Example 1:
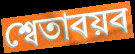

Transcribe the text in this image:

শ্বেতাবয়ব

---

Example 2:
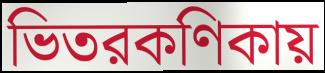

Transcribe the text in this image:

ভিতরকণিকায়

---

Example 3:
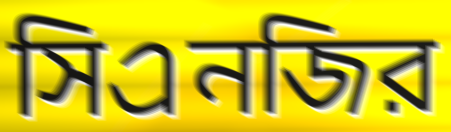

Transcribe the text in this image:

সিএনজির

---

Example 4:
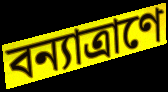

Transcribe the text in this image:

বন্যাত্রাণে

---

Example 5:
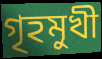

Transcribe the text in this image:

গৃহমুখী